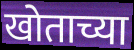
खोताच्या